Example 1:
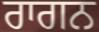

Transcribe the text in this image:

ਰਾਗਨ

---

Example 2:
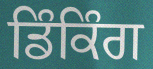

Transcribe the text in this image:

ਡਿੰਕਿੰਗ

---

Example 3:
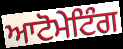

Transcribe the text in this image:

ਆਟੋਮੇਟਿੰਗ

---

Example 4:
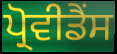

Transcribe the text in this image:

ਪ੍ਰੋਵੀਡੈਂਸ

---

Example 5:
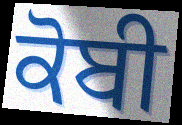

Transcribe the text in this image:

ਕੋਬੀ